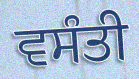
ਵਸੰਤੀ